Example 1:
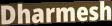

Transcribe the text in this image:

Dharmesh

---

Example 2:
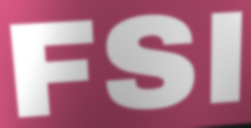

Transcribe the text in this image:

FSI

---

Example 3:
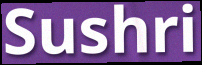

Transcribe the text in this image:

Sushri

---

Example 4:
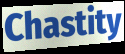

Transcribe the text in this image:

Chastity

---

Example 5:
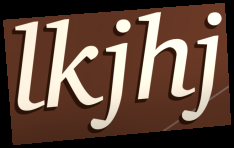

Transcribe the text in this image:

lkjhj